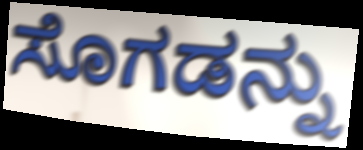
ಸೊಗಡನ್ನು